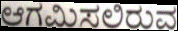
ಆಗಮಿಸಲಿರುವ